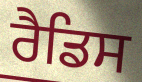
ਰੈਡਿਸ